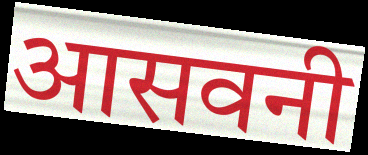
आसवनी